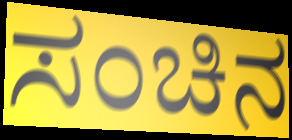
ಸಂಚಿನ